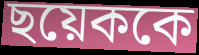
ছয়েককে